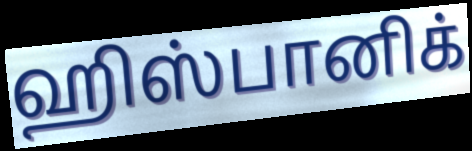
ஹிஸ்பானிக்